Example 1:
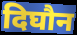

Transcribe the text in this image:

दिघौन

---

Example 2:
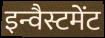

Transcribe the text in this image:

इन्वैस्टमेंट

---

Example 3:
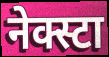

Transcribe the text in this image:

नेक्स्टा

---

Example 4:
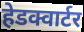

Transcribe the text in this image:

हेडक्वार्टर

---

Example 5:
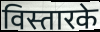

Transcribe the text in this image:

विस्तारके